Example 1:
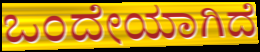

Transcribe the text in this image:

ಒಂದೇಯಾಗಿದೆ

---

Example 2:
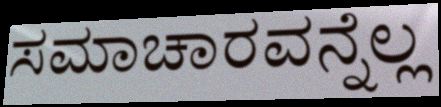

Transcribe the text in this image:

ಸಮಾಚಾರವನ್ನೆಲ್ಲ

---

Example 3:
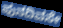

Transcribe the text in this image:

ಪುನದಿವಸೇ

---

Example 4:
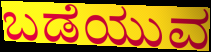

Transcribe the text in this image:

ಬಡೆಯುವ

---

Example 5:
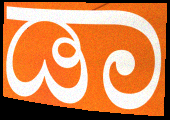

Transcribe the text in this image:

ಡಾ